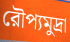
রৌপ্যমুদ্রা